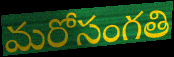
మరోసంగతి